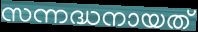
സന്നദ്ധനായത്